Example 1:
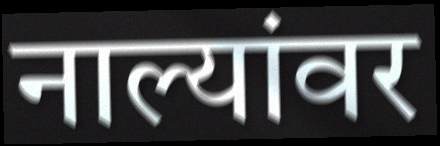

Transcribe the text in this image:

नाल्यांवर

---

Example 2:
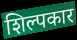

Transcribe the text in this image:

शिल्पकार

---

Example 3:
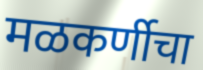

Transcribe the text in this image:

मळकर्णीचा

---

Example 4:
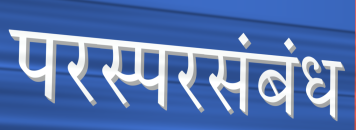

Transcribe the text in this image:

परस्परसंबंध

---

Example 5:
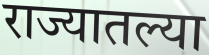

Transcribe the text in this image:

राज्यातल्या